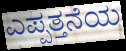
ಎಪ್ಪತ್ತನೆಯ